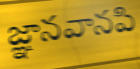
జ్ఞానవానపి